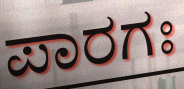
ಪಾರಗಃ